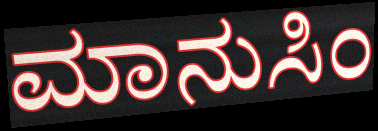
ಮಾನುಸಿಂ